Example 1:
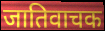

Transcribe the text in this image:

जातिवाचक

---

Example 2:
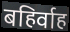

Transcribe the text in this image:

बहिर्वाह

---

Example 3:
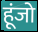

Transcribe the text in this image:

हूंजो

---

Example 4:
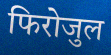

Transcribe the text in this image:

फिरोजुल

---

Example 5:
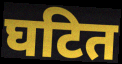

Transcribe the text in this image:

घटित